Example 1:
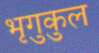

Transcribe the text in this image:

भृगुकुल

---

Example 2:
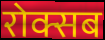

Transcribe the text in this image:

रोक्सब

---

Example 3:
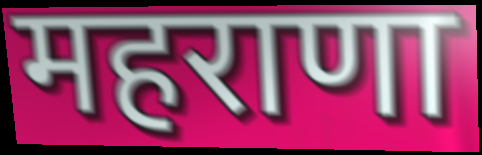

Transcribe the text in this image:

महराणा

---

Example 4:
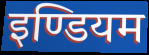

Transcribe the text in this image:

इण्डियम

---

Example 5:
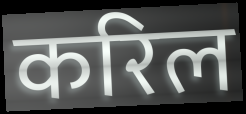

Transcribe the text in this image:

करिल